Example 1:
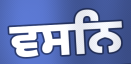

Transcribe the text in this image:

ਵਸਨਿ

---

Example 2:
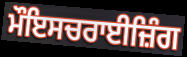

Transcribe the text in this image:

ਮੌਇਸਚਰਾਈਜ਼ਿੰਗ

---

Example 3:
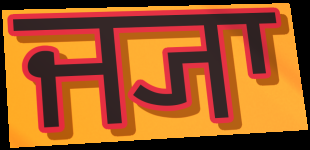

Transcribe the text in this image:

ਜ੍ਯਾ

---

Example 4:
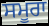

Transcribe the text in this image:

ਸਮੂਰਾ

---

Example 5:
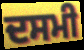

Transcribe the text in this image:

ਦਸਮੀ